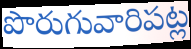
పొరుగువారిపట్ల